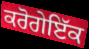
ਕਰੋਗੇਇੱਕ